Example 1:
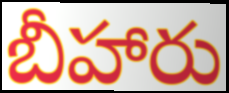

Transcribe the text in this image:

బీహారు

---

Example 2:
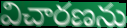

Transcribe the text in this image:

విచారణను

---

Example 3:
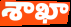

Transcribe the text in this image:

శాఖా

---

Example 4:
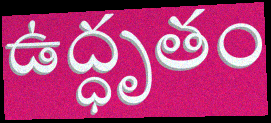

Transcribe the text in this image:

ఉద్ధృతం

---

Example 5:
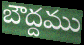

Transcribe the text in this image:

బౌద్దము